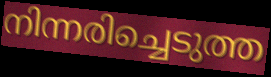
നിന്നരിച്ചെടുത്ത